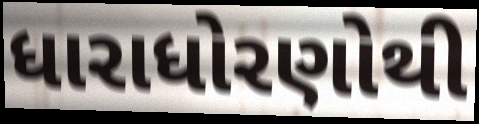
ધારાધોરણોથી